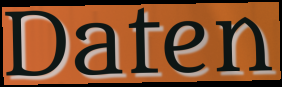
Daten